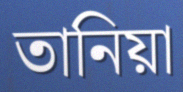
তানিয়া